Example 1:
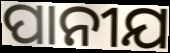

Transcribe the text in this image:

ପାନୀଯ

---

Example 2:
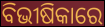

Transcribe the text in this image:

ବିଭୀଷିକାରେ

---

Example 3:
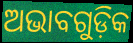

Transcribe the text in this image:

ଅଭାବଗୁଡ଼ିକ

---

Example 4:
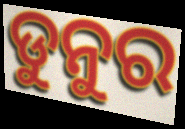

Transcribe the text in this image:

ଡୁନୁର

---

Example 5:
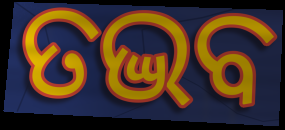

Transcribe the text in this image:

ତଦ୍ଭବ